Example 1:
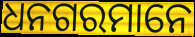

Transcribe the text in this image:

ଧନଗରମାନେ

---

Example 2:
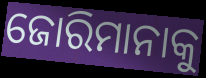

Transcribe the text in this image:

ଜୋରିମାନାକୁ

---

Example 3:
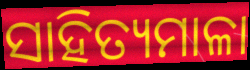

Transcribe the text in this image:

ସାହିତ୍ୟମାଳା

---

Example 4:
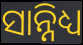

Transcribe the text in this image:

ସାନ୍ନିଧ୍ୟ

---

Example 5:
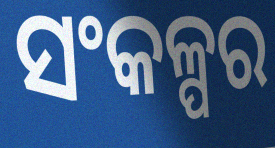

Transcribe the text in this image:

ସଂକଳ୍ପର